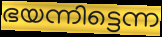
ഭയന്നിട്ടെന്ന